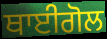
ਥਾਈਗੋਲ